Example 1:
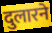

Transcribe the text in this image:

दुलारने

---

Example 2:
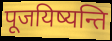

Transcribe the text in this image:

पूजयिष्यन्ति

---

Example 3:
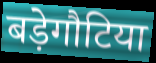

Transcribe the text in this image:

बड़ेगौटिया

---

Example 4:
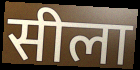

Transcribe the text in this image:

सीला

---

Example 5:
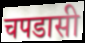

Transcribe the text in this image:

चपडासी